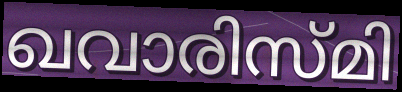
ഖവാരിസ്മി